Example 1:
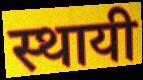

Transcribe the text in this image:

स्‍थायी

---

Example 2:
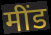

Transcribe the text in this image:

मींड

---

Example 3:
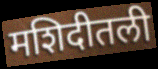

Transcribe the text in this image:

मशिदीतली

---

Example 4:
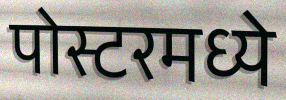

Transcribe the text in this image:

पोस्टरमध्ये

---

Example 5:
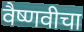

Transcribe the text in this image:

वैष्णवीचा